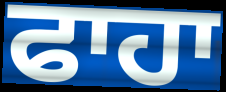
ਫਾਹਾ